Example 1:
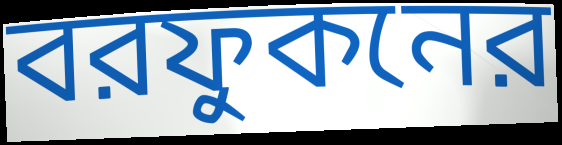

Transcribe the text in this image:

বরফুকনের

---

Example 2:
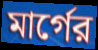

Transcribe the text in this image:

মার্গের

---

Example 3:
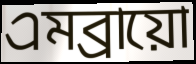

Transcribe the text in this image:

এমব্রায়ো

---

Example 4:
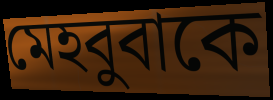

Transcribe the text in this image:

মেহবুবাকে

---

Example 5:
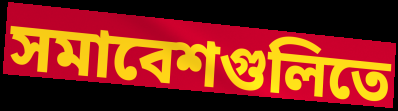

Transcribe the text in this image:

সমাবেশগুলিতে